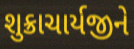
શુક્રાચાર્યજીને